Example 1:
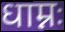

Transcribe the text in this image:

धाम्नः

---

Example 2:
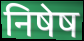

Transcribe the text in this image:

निषेष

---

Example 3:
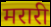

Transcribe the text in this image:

मरारी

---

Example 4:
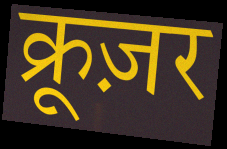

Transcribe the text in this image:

क्रूज़र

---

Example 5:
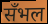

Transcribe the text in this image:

सँभल